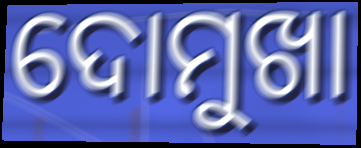
ଦୋମୁଖା